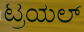
ಟ್ರಯಲ್